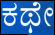
ಕಥೇ